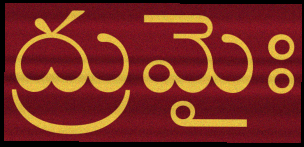
ద్రుమైః